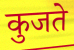
कुजते